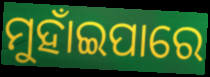
ମୁହାଁଇପାରେ